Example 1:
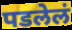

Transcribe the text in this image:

पडलेलं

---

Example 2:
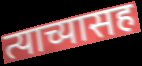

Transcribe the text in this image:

त्याच्यासह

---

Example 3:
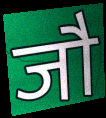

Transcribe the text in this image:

जौ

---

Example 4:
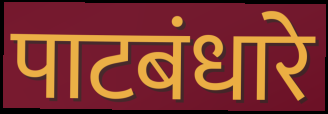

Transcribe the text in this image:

पाटबंधारे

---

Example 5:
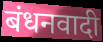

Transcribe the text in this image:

बंधनवादी